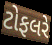
ટોફલરે